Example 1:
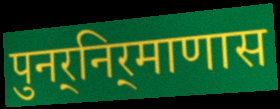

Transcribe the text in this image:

पुनर्निर्माणास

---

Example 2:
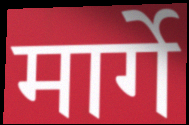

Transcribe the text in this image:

मार्गे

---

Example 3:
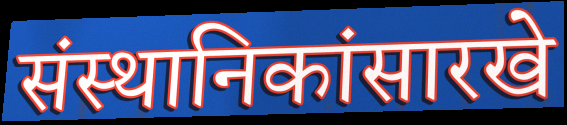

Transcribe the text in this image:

संस्थानिकांसारखे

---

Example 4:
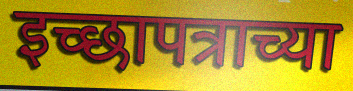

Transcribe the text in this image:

इच्छापत्राच्या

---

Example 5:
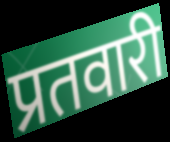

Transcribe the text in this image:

प्रतवारी